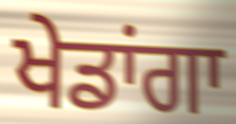
ਖੇਡਾਂਗਾ